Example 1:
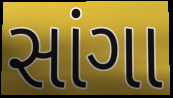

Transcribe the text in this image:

સાંગા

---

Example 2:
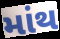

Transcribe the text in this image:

માંથ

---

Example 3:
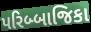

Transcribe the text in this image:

પરિબ્બાજિકા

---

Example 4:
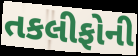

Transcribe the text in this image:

તકલીફોની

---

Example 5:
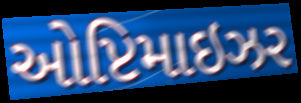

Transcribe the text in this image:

ઓપ્ટિમાઇઝર